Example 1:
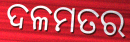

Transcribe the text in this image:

ଦଳମତର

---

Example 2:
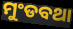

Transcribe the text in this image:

ମୁଂଡବଥା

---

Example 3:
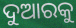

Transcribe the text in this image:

ଦୁଆରକୁ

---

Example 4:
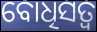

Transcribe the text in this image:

ବୋଧିସତ୍ୱ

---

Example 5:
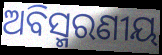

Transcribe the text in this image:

ଅବିସ୍ମରଣୀୟ